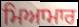
ਮਿਆਮਾਰ